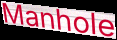
Manhole